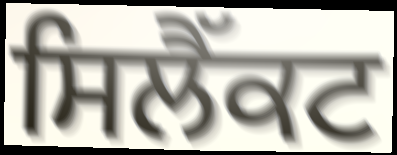
ਸਿਲੈੱਕਟ